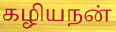
கழியநன்